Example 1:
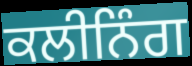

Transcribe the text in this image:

ਕਲੀਨਿੰਗ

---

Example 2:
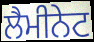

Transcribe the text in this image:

ਲੈਮੀਨੇਟ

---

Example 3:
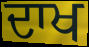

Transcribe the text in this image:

ਦਾਖ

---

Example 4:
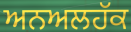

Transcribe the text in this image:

ਅਨਅਲਹੱਕ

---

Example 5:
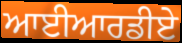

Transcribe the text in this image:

ਆਈਆਰਡੀਏ